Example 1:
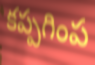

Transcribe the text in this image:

కప్పగింప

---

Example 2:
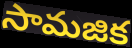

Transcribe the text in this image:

సామజిక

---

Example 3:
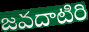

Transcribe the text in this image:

జవదాటిరి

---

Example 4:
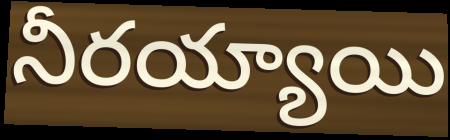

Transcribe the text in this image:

నీరయ్యాయి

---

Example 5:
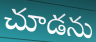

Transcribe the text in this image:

చూడను